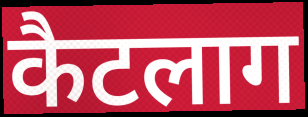
कैटलाग